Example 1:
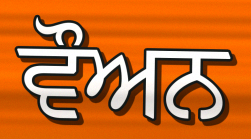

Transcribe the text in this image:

ਵੌਅਨ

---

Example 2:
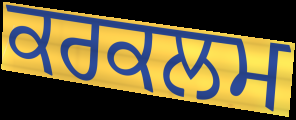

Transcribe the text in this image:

ਕਰਕਲਮ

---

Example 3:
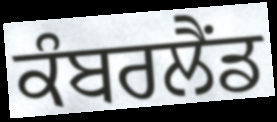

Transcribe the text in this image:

ਕੰਬਰਲੈਂਡ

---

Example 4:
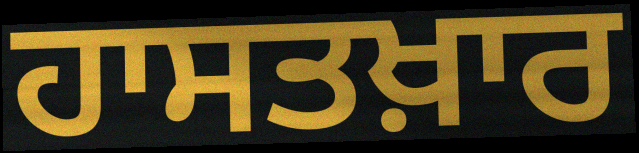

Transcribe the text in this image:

ਹਾਸਤਖ਼ਾਰ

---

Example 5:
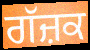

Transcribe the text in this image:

ਗੱਜ਼ਕ